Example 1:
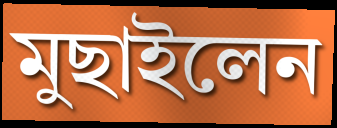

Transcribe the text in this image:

মুছাইলেন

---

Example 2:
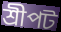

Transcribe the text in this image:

শ্রীপট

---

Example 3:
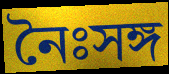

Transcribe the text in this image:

নৈঃসঙ্গ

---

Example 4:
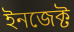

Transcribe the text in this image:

ইনজেক্ট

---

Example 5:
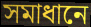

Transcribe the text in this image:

সমাধানে